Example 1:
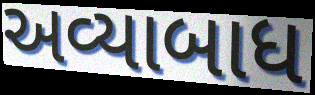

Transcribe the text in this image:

અવ્યાબાધ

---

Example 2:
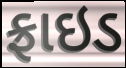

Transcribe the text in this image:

ફ્રાઇડ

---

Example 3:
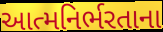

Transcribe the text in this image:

આત્મનિર્ભરતાના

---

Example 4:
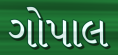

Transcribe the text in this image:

ગોપાલ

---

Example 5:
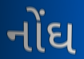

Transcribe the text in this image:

નોંઘ